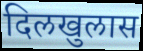
दिलखुलास